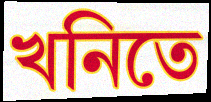
খনিতে